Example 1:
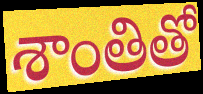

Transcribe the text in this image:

శాంతితో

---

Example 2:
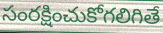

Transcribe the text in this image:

సంరక్షించుకోగలిగితే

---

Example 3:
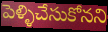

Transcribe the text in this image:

పెళ్ళిచేసుకోనని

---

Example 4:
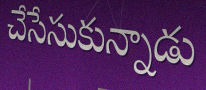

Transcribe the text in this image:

చేసేసుకున్నాడు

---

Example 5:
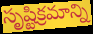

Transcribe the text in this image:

సృష్టిక్రమాన్ని